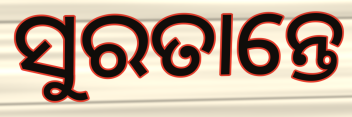
ସୁରତାନ୍ତେ